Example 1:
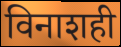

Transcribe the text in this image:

विनाशही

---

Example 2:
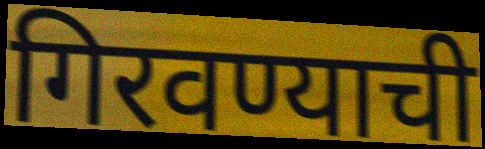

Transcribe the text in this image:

गिरवण्याची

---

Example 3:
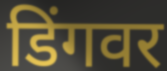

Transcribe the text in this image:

डिंगवर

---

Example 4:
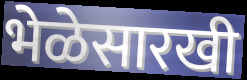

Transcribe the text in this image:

भेळेसारखी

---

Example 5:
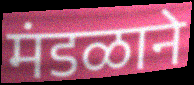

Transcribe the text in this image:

मंडळाने